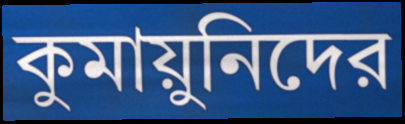
কুমায়ুনিদের